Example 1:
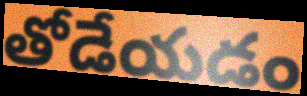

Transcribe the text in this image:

తోడేయడం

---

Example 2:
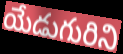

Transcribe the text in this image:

యేడుగురిని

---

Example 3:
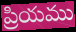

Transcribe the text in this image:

ప్రియము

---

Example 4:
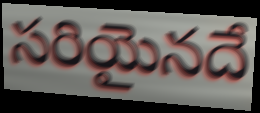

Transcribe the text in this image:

సరియైనదే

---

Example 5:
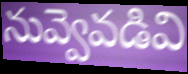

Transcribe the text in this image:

నువ్వెవడివి